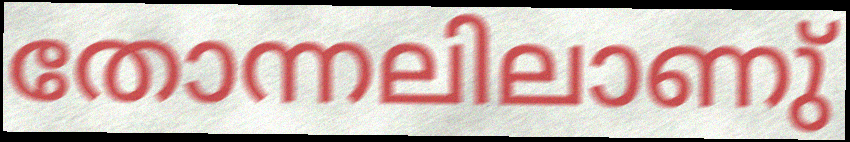
തോന്നലിലാണു്